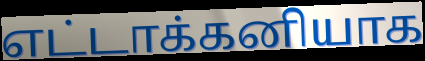
எட்டாக்கனியாக